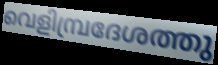
വെളിമ്പ്രദേശത്തു